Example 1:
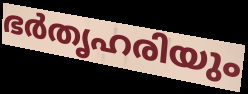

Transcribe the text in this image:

ഭർതൃഹരിയും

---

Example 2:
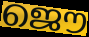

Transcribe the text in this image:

ജൌ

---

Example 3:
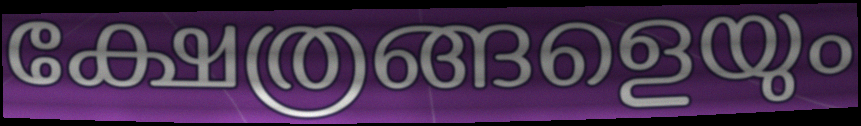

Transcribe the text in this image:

ക്ഷേത്രങ്ങളെയും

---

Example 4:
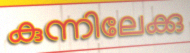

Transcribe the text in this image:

കുന്നിലേക്കു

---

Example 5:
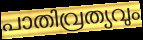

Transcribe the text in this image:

പാതിവ്രത്യവും